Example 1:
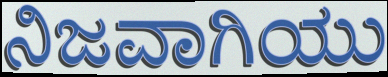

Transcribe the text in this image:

ನಿಜವಾಗಿಯು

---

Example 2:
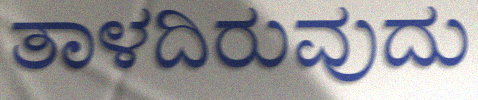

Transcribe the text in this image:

ತಾಳದಿರುವುದು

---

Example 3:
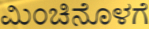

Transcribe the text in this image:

ಮಿಂಚಿನೊಳಗೆ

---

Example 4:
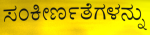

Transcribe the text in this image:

ಸಂಕೀರ್ಣತೆಗಳನ್ನು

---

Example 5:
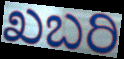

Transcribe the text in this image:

ಖಬರಿ